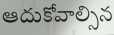
ఆదుకోవాల్సిన